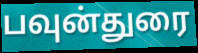
பவுன்துரை